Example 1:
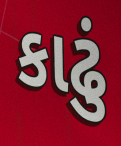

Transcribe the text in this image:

કાઢું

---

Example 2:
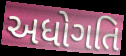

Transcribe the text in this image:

અધોગતિ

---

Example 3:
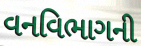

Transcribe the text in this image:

વનવિભાગની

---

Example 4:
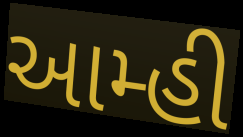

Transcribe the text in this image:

આમ્હી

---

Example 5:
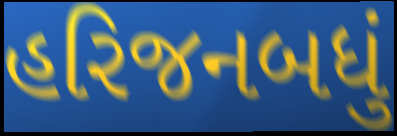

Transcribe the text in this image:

હરિજનબધું